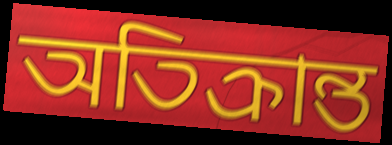
অতিক্ৰান্ত